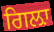
ਗਿਲ਼ਾ